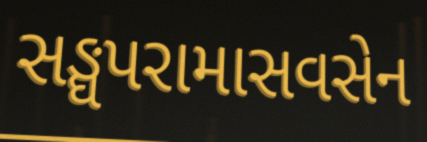
સઙ્ઘપરામાસવસેન